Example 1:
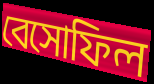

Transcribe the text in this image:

বেসোফিল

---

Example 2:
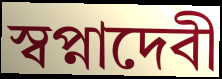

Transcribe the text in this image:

স্বপ্নাদেবী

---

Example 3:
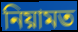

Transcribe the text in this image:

নিয়ামত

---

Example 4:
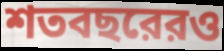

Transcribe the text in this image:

শতবছরেরও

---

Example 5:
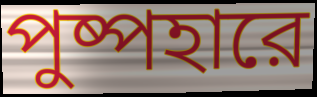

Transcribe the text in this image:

পুষ্পহারে